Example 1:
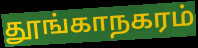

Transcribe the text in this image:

தூங்காநகரம்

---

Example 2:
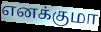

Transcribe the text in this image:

எனக்குமா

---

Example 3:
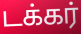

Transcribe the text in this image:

டக்கர்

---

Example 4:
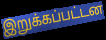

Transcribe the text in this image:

இறுக்கப்பட்டன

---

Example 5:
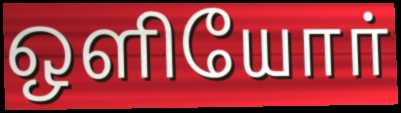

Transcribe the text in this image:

ஒளியோர்